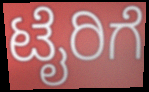
ಟೈರಿಗೆ